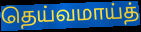
தெய்வமாய்த்